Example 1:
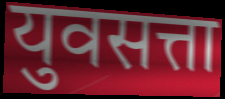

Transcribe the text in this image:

युवसत्ता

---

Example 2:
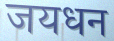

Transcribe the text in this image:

जयधन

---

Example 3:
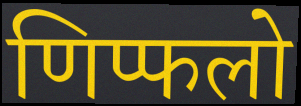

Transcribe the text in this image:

णिप्फलो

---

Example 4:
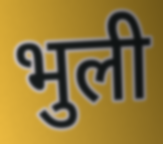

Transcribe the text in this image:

भुली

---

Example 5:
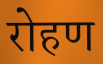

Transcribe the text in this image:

रोहण